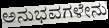
ಅನುಭವಗಳೇನು